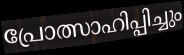
പ്രോത്സാഹിപ്പിച്ചും